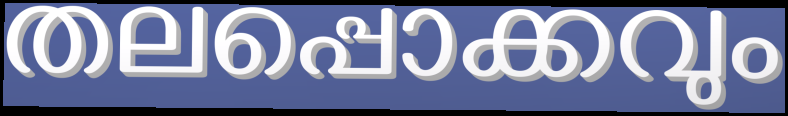
തലപ്പൊക്കവും